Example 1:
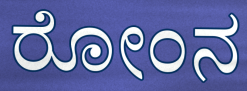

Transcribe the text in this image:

ರೋಂನ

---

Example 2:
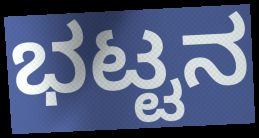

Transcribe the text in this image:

ಭಟ್ಟನ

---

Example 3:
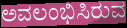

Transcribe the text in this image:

ಅವಲಂಭಿಸಿರುವ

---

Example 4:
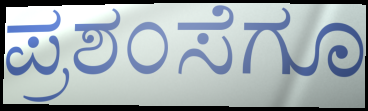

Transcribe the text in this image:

ಪ್ರಶಂಸೆಗೂ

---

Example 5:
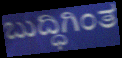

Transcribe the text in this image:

ಬುದ್ಧಿಗಿಂತ